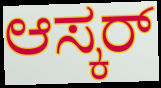
ಆಸ್ಕರ್